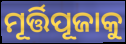
ମୂର୍ତ୍ତିପୂଜାକୁ